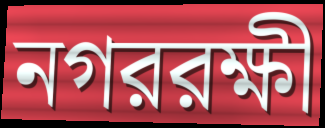
নগররক্ষী